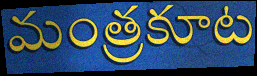
మంత్రకూట